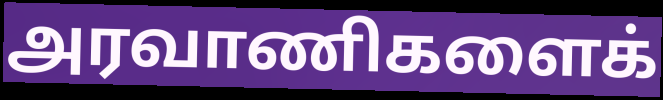
அரவாணிகளைக்